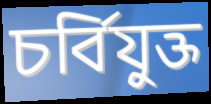
চৰ্বিযুক্ত